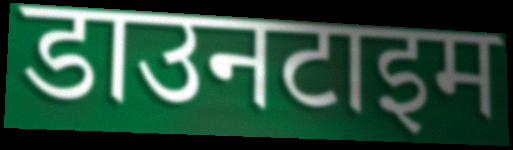
डाउनटाइम